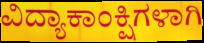
ವಿದ್ಯಾಕಾಂಕ್ಷಿಗಳಾಗಿ